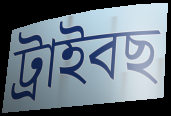
ট্ৰাইবছ